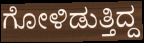
ಗೋಳಿಡುತ್ತಿದ್ದ